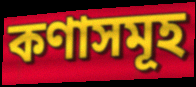
কণাসমূহ